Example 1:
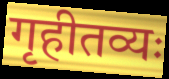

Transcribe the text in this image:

गृहीतव्यः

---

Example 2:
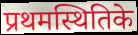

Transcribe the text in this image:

प्रथमस्थितिके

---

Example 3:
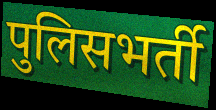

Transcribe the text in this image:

पुलिसभर्ती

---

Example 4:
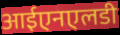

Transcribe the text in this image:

आईएनएलडी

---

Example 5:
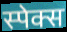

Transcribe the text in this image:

स्पेक्स